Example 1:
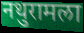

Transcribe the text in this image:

नथुरामला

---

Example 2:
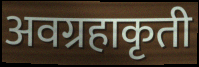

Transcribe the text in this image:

अवग्रहाकृती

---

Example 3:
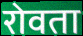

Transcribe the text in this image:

रोवता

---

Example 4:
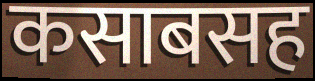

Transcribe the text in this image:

कसाबसह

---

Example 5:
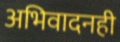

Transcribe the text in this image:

अभिवादनही